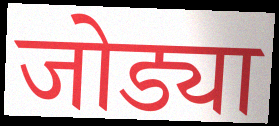
जोड्या